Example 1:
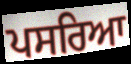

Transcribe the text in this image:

ਪਸਰਿਆ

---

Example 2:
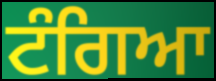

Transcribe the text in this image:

ਟੰਗਿਆ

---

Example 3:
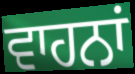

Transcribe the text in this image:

ਵਾਹਨਾਂ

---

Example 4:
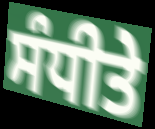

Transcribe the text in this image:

ਸੰਧੀਤੇ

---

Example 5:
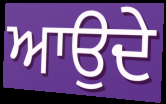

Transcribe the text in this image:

ਆਉਦੇ